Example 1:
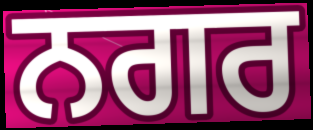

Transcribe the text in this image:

ਨਗਰ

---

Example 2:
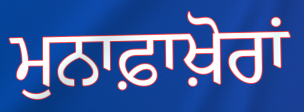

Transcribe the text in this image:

ਮੁਨਾਫ਼ਾਖ਼ੋਰਾਂ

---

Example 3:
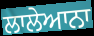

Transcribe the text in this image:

ਲਾਲੇਆਨਾ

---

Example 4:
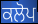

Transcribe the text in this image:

ਕਲੋਪ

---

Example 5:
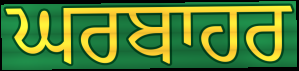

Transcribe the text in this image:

ਘਰਬਾਹਰ